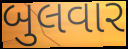
બુલવાર